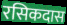
रसिकदास